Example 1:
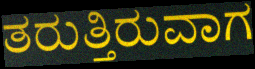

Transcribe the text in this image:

ತರುತ್ತಿರುವಾಗ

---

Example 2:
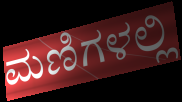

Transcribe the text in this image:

ಮಣಿಗಳಲ್ಲಿ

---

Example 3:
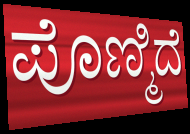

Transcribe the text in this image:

ಪೊಣ್ಮಿದೆ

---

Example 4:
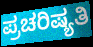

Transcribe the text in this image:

ಪ್ರಚರಿಷ್ಯತಿ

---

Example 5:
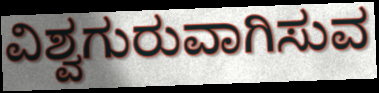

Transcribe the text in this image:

ವಿಶ್ವಗುರುವಾಗಿಸುವ